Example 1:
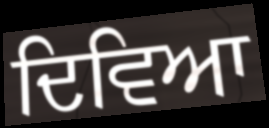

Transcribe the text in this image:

ਦਿਵਿਆ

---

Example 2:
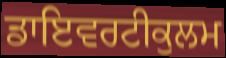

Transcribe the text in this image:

ਡਾਇਵਰਟੀਕੁਲਮ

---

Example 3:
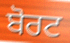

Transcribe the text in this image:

ਬੋਰਟ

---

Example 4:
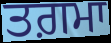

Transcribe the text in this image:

ਤਗ਼ਮਾ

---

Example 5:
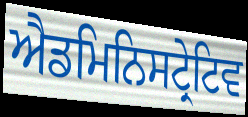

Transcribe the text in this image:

ਐਡਮਿਨਿਸਟ੍ਰੇਟਿਵ